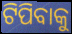
ଟିପିବାକୁ